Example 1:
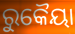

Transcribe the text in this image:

ରୁକୈୟା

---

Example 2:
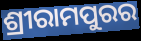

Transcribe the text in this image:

ଶ୍ରୀରାମପୁରର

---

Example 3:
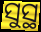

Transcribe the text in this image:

ସୁସ୍ଥ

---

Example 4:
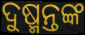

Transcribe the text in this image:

ଦୁଷ୍ମନ୍ତଙ୍କ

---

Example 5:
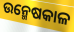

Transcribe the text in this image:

ଉନ୍ମେଷକାଳ